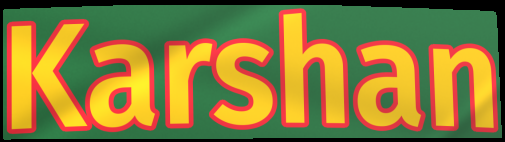
Karshan